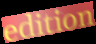
edition